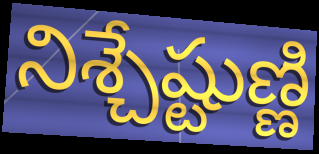
నిశ్చేష్టుణ్ణి